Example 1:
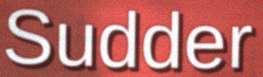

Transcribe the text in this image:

Sudder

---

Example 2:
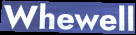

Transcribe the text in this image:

Whewell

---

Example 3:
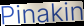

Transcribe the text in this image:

Pinakin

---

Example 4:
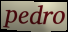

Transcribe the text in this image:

pedro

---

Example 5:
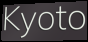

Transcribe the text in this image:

Kyoto